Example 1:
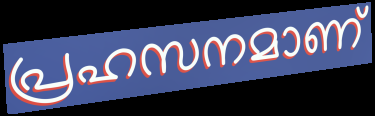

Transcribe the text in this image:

പ്രഹസനമാണ്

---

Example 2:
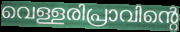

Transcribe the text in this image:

വെള്ളരിപ്രാവിന്റെ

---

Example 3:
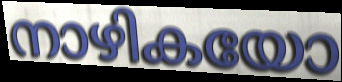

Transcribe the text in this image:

നാഴികയോ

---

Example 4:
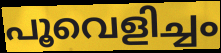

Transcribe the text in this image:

പൂവെളിച്ചം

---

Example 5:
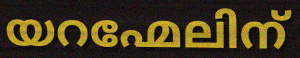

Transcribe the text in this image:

യറഹ്മേലിന്